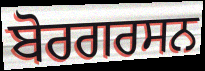
ਬੋਰਗਰਸਨ